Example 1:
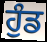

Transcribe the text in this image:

ਹੁੰਡ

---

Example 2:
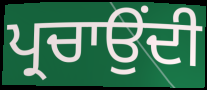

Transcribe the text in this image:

ਪ੍ਰਚਾਉਂਦੀ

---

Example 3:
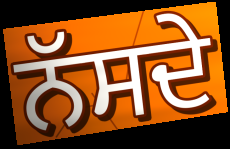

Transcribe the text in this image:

ਨੱਸਦੇ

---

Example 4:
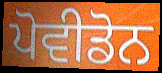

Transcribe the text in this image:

ਪੋਵੀਡੋਨ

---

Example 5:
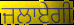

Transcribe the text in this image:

ਜਲਾਏਗੀ